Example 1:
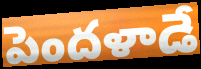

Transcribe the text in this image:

పెందళాడే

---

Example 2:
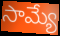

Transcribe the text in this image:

సామ్యే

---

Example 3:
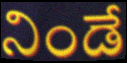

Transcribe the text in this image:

నిండే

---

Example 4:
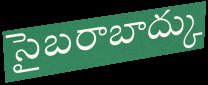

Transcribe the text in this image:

సైబరాబాద్కు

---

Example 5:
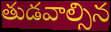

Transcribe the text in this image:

తుడవాల్సిన